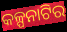
କଳ୍ପନାଟିର